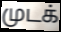
முடக்